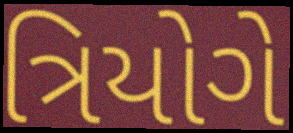
ત્રિયોગે